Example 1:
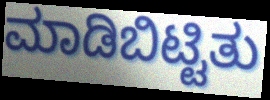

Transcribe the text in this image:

ಮಾಡಿಬಿಟ್ಟಿತು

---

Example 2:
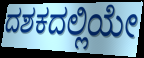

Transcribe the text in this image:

ದಶಕದಲ್ಲಿಯೇ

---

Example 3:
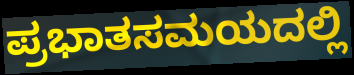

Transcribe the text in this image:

ಪ್ರಭಾತಸಮಯದಲ್ಲಿ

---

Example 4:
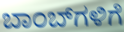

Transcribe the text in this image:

ಬಾಂಬ್‌ಗಳಿಗೆ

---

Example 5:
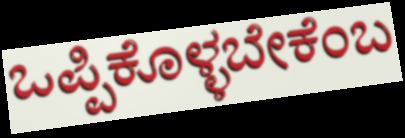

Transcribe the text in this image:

ಒಪ್ಪಿಕೊಳ್ಳಬೇಕೆಂಬ